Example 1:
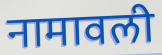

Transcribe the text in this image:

नामावली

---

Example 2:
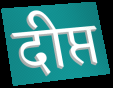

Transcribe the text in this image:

दीप्त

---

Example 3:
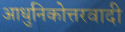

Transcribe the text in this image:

आधुनिकोत्तरवादी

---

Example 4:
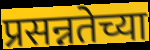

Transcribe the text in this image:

प्रसन्नतेच्या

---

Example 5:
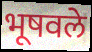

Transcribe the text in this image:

भूषवले